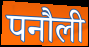
पनौली